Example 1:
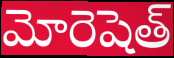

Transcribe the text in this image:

మోరెషెత్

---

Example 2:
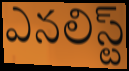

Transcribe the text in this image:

ఎనలిస్ట్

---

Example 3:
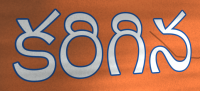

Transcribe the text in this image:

కరిగిన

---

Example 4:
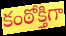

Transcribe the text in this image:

కంఠోక్తిగా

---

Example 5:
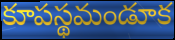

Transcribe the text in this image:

కూపస్థమండూక